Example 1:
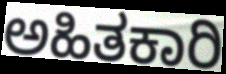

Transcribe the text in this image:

ಅಹಿತಕಾರಿ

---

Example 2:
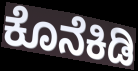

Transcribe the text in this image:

ಕೊನೆಕಿಡಿ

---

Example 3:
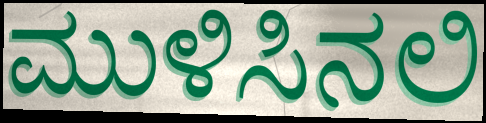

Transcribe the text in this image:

ಮುಳಿಸಿನಲಿ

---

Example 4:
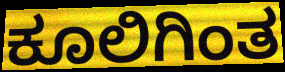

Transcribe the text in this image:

ಕೂಲಿಗಿಂತ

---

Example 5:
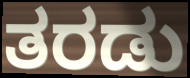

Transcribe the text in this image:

ತರಡು